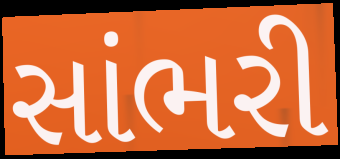
સાંભરી